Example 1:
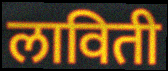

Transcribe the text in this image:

लाविती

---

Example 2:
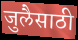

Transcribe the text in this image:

जुलैसाठी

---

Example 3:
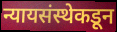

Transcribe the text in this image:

न्यायसंस्थेकडून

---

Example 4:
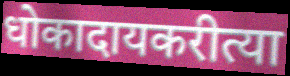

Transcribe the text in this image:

धोकादायकरीत्या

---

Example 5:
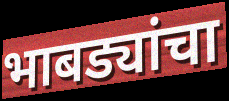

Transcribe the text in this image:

भाबड्यांचा